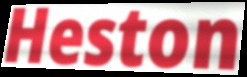
Heston